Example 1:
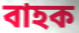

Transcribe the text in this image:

বাহক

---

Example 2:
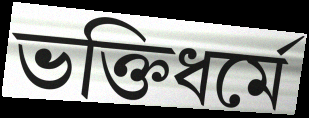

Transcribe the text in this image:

ভক্তিধর্মে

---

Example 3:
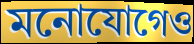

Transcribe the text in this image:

মনোযোগেও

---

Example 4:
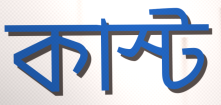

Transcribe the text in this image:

কাস্ট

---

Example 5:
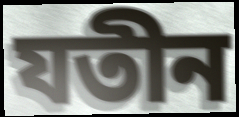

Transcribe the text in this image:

যতীন